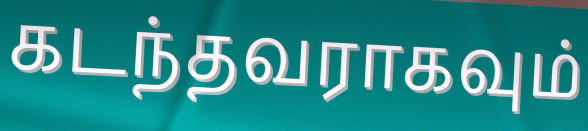
கடந்தவராகவும்